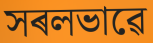
সৰলভাৱে